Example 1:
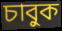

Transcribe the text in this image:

চাবুক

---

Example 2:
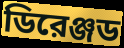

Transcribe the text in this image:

ডিরেঞ্জড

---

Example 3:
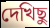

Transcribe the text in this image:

দেখিছু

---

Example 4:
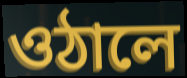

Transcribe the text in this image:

ওঠালে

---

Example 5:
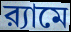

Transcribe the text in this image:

র‍্যামে